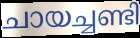
ചായച്ചണ്ടി